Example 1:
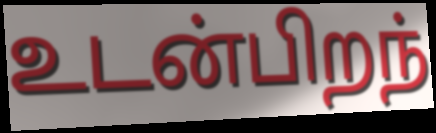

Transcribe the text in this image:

உடன்பிறந்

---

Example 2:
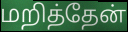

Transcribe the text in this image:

மறித்தேன்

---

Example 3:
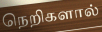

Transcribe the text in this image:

நெறிகளால்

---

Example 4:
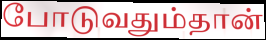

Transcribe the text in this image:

போடுவதும்தான்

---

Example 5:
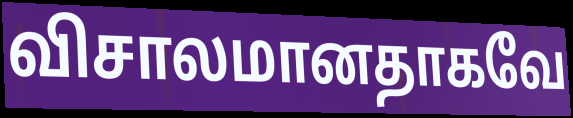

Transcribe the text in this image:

விசாலமானதாகவே